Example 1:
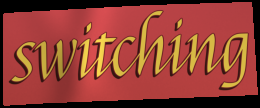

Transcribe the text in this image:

switching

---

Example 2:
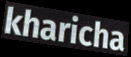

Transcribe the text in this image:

kharicha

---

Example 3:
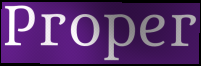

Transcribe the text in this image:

Proper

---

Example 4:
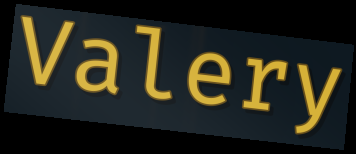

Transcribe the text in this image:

Valery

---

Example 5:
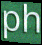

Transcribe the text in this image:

ph